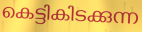
കെട്ടികിടക്കുന്ന